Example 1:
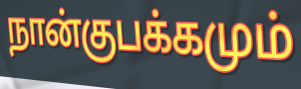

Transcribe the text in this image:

நான்குபக்கமும்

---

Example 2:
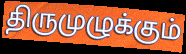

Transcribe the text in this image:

திருமுழுக்கும்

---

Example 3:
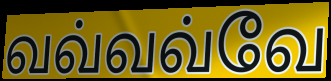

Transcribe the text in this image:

வவ்வவ்வே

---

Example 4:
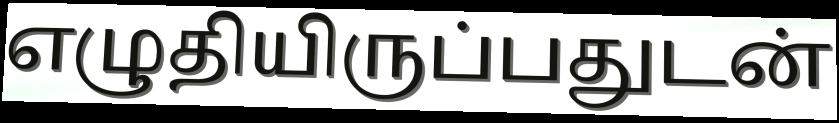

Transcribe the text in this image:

எழுதியிருப்பதுடன்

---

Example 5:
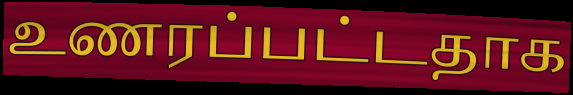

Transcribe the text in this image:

உணரப்பட்டதாக